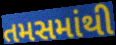
તમસમાંથી